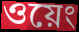
ওয়েং